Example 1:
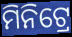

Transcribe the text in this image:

ମିନିଟ୍ରେ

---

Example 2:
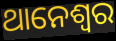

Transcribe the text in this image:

ଥାନେଶ୍ୱର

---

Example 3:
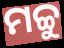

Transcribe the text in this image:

ମଚ୍ଚୁ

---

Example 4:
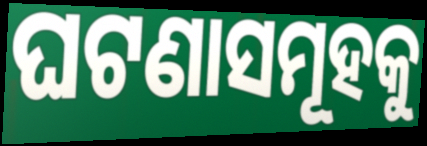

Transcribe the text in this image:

ଘଟଣାସମୂହକୁ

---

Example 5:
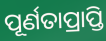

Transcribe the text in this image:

ପୂର୍ଣତାପ୍ରାପ୍ତି